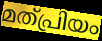
മത്പ്രിയം